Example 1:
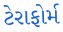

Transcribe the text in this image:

ટેરાફોર્મ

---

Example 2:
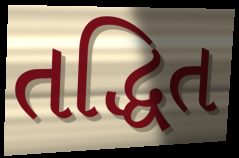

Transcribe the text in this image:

તદ્ધિત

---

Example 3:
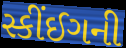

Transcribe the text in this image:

સ્કીંઈગની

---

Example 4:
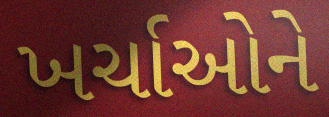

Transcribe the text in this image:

ખર્ચાઓને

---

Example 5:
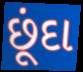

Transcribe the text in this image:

છૂંદા